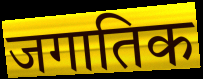
जगातिक